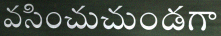
వసించుచుండగా